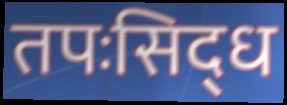
तपःसिद्ध